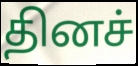
தினச்